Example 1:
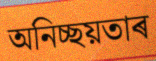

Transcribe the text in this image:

অনিচ্ছয়তাৰ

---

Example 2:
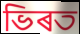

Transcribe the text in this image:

ভিৰত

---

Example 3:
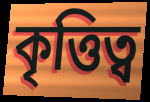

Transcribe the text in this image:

কৃত্তিত্ব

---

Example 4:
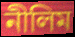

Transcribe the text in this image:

নীলিম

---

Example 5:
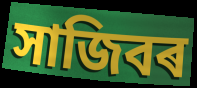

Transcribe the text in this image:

সাজিবৰ